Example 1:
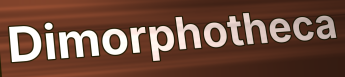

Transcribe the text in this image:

Dimorphotheca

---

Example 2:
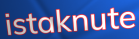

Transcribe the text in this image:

istaknute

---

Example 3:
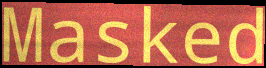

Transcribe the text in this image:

Masked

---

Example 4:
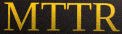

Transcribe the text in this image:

MTTR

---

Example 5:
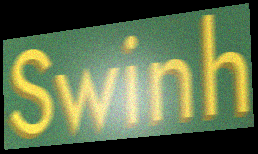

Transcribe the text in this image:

Swinh